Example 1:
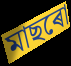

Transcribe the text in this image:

মাছৰো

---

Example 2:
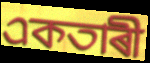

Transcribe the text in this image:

একতাৰী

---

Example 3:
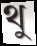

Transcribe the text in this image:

থু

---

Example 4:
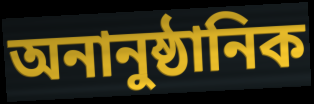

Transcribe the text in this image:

অনানুষ্ঠানিক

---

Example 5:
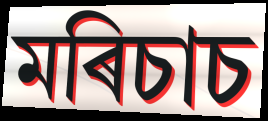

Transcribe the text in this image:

মৰিচাচ